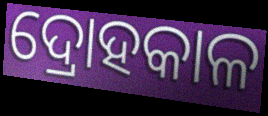
ଦ୍ରୋହକାଳ